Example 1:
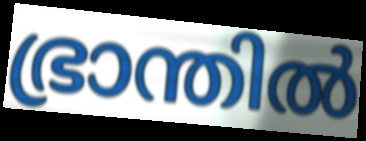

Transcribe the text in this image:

ഭ്രാന്തിൽ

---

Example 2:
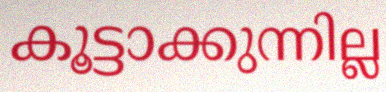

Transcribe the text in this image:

കൂട്ടാക്കുന്നില്ല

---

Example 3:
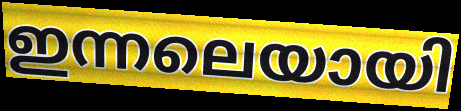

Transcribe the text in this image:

ഇന്നലെയായി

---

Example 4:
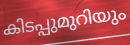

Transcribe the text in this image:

കിടപ്പുമുറിയും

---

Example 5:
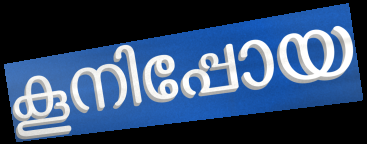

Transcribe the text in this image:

കൂനിപ്പോയ